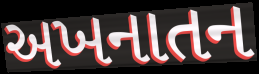
અખનાતન